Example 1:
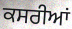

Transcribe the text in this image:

ਕਸਰੀਆਂ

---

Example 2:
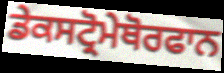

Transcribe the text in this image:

ਡੇਕਸਟ੍ਰੋਮੇਥੋਰਫਾਨ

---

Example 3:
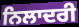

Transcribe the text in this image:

ਨਿਲਾਦਰੀ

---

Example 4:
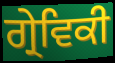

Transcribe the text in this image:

ਗ੍ਰੇਵਿਕੀ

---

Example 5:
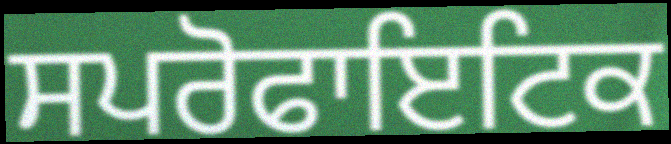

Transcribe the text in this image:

ਸਪਰੋਫਾਇਟਿਕ